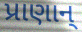
પ્રાણાન્